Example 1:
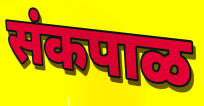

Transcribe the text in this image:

संकपाळ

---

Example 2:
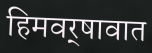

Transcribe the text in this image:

हिमवर्षावात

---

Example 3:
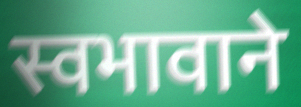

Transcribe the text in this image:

स्वभावाने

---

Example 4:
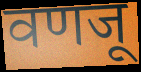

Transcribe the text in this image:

वणजू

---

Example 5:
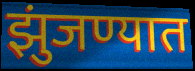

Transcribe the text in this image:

झुंजण्यात